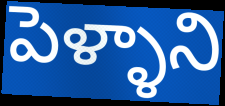
పెళ్ళాని